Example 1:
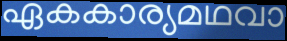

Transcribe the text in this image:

ഏകകാര്യമഥവാ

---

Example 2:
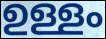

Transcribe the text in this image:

ഉള്ളം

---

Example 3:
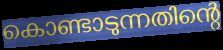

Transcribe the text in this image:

കൊണ്ടാടുന്നതിന്റെ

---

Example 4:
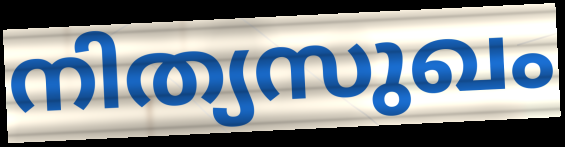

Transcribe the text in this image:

നിത്യസുഖം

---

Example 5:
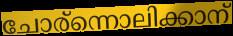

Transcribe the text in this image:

ചോര്ന്നൊലിക്കാന്